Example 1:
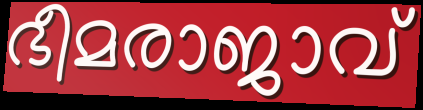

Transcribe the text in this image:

ഭീമരാജാവ്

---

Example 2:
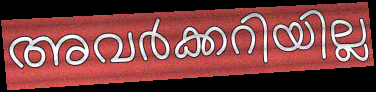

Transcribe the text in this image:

അവർക്കറിയില്ല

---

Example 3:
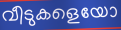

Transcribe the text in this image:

വീടുകളെയോ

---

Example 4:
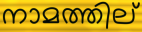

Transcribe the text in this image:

നാമത്തില്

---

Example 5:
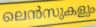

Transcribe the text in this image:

ലെൻസുകളും